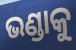
ଭଣ୍ଡାକୁ